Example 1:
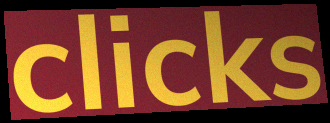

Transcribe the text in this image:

clicks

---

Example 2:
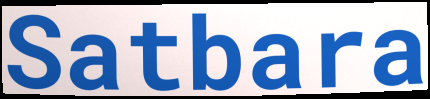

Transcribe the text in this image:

Satbara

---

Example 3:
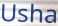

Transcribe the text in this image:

Usha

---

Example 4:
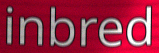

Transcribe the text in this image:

inbred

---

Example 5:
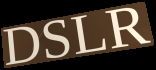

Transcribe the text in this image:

DSLR